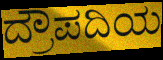
ದ್ರೌಪದಿಯ